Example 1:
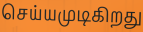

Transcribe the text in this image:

செய்யமுடிகிறது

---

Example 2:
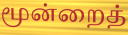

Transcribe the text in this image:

மூன்றைத்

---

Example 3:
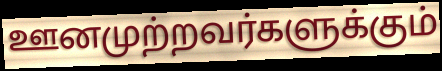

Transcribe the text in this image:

ஊனமுற்றவர்களுக்கும்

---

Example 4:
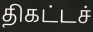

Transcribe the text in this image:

திகட்டச்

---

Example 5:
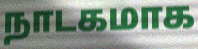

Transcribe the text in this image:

நாடகமாக